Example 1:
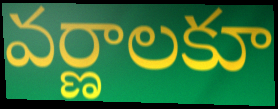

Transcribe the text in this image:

వర్ణాలకూ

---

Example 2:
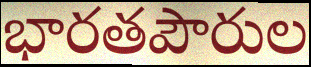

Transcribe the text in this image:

భారతపౌరుల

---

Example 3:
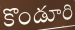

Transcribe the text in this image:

కొండూరి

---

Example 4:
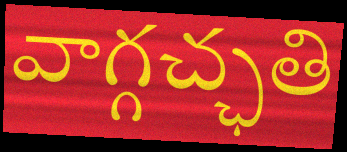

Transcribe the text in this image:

వాగ్గచ్ఛతి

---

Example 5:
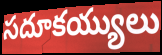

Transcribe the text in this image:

సదూకయ్యులు